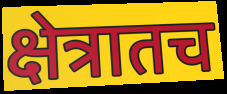
क्षेत्रातच